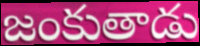
జంకుతాడు